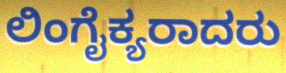
ಲಿಂಗೈಕ್ಯರಾದರು